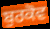
ਬੁਰਕੋਵ